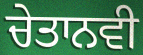
ਚੇਤਾਨਵੀ